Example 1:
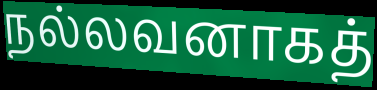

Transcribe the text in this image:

நல்லவனாகத்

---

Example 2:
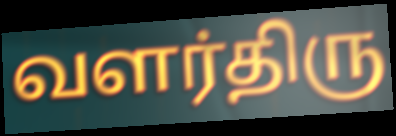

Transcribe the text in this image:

வளர்திரு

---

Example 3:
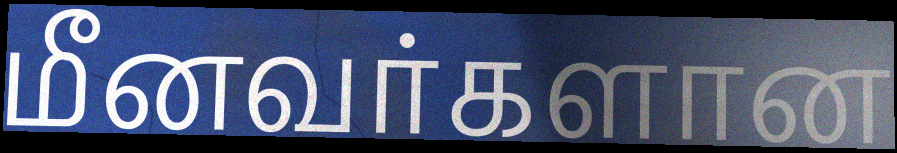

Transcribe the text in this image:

மீனவர்களான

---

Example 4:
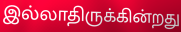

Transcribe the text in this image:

இல்லாதிருக்கின்றது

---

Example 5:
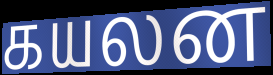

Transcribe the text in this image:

கயலன